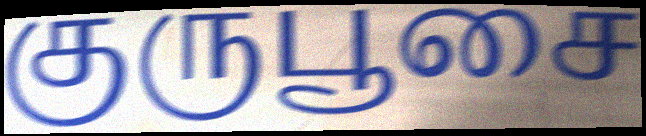
குருபூசை